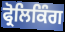
ਫ੍ਰੋਲਿਕਿੰਗ